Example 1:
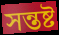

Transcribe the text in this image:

সন্তষ্ট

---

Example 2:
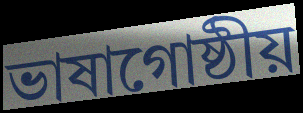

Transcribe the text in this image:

ভাষাগোষ্ঠীয়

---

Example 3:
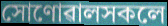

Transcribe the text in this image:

সোণোৱালসকলে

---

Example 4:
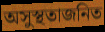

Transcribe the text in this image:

অসুস্থতাজনিত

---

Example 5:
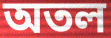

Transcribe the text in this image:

অতল